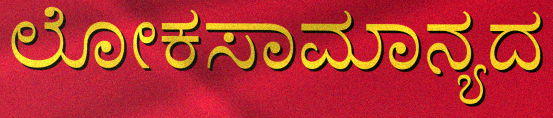
ಲೋಕಸಾಮಾನ್ಯದ